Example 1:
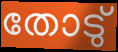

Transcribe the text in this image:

തോടു്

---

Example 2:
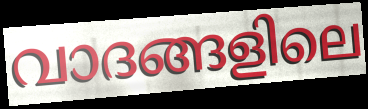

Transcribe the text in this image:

വാദങ്ങളിലെ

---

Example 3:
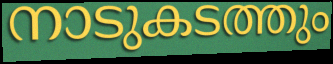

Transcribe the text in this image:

നാടുകടത്തും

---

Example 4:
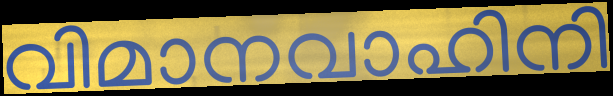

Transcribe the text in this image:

വിമാനവാഹിനി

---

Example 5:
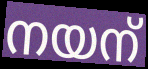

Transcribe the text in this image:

നയന്